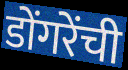
डोंगरेंची